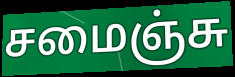
சமைஞ்சு